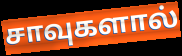
சாவுகளால்